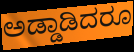
ಅಡ್ಡಾಡಿದರೂ